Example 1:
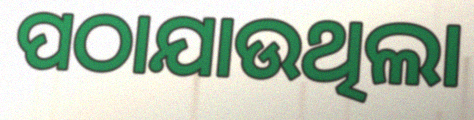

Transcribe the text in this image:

ପଠାଯାଉଥିଲା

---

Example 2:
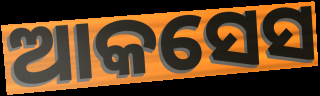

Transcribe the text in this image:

ଆକସେସ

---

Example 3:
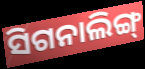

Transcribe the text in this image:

ସିଗନାଲିଙ୍ଗ୍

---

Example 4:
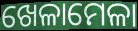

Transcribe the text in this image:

ଖେଳାମେଳା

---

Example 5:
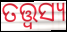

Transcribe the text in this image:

ତତ୍ତ୍ୱସ୍ୟ